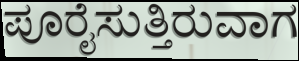
ಪೂರೈಸುತ್ತಿರುವಾಗ